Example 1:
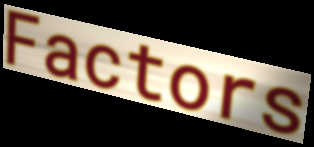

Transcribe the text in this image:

Factors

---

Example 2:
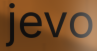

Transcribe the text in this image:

jevo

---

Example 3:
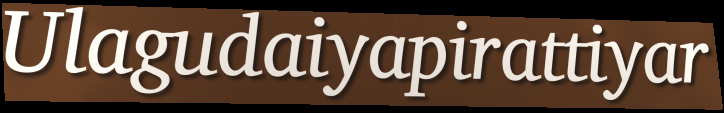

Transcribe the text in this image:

Ulagudaiyapirattiyar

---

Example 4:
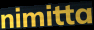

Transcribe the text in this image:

nimitta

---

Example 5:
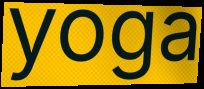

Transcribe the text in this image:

yoga